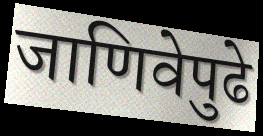
जाणिवेपुढे